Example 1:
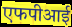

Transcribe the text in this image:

एफपीआई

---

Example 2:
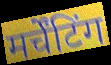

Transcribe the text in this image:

मर्चेंटिंग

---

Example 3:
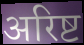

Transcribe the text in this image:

अरिष्ट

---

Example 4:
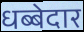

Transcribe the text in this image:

धब्बेदार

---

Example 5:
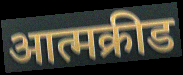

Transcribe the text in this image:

आत्मक्रीड